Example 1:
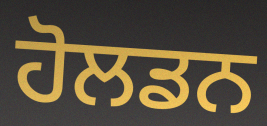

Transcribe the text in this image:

ਹੋਲਡਨ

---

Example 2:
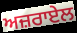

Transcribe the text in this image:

ਅਜ਼ਰਾਏਲ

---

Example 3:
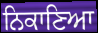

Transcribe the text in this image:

ਨਿਕਾਣਿਆ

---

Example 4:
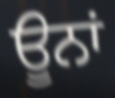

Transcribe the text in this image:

ਊਨਾਂ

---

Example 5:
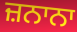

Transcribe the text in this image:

ਜ਼ਨਾਨਾ